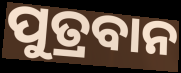
ପୁତ୍ରବାନ